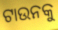
ଟାଉନକୁ